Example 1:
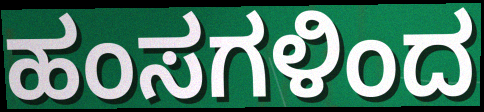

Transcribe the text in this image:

ಹಂಸಗಳಿಂದ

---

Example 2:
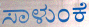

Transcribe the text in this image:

ಸಾಳುಂಕೆ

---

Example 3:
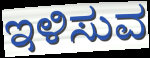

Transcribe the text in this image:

ಇಳಿಸುವ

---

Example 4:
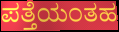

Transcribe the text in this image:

ಪತ್ತೆಯಂತಹ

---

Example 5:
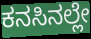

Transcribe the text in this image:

ಕನಸಿನಲ್ಲೇ